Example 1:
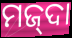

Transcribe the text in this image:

ମଜ୍‌ଦା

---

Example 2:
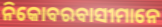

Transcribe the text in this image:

ନିକୋବରବାସୀମାନେ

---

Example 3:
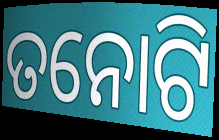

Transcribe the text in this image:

ତନୋଟି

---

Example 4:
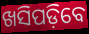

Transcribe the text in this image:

ଖସିପଡ଼ିବେ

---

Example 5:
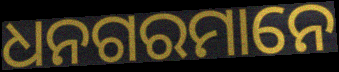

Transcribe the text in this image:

ଧନଗରମାନେ